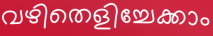
വഴിതെളിച്ചേക്കാം